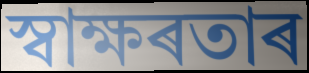
স্বাক্ষৰতাৰ